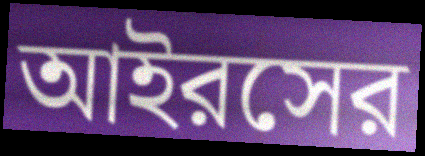
আইরসের